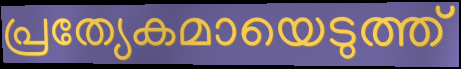
പ്രത്യേകമായെടുത്ത്